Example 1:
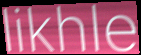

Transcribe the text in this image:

likhle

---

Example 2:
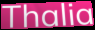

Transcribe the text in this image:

Thalia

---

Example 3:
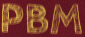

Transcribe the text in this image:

PBM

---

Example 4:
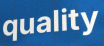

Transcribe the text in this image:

quality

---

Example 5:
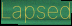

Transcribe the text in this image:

Lapsed